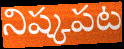
నిష్కపట